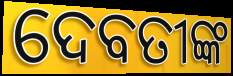
ଦେବତୀଙ୍କ